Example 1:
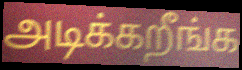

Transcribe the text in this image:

அடிக்கறீங்க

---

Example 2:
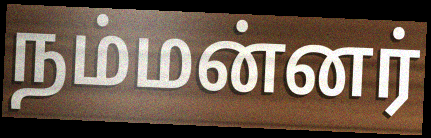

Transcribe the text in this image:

நம்மன்னர்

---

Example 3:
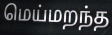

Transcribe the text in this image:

மெய்மறந்த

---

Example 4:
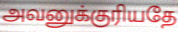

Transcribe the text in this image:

அவனுக்குரியதே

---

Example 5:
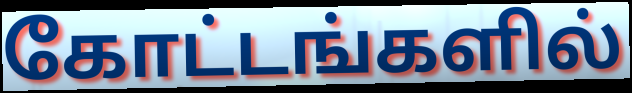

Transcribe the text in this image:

கோட்டங்களில்